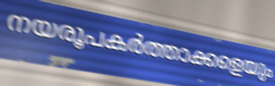
നയരൂപകർത്താക്കളെയും